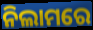
ନିଲାମରେ